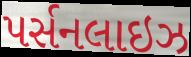
પર્સનલાઇઝ